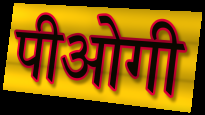
पीओगी